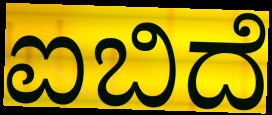
ಐಬಿದೆ